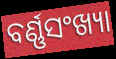
ବର୍ଣ୍ଣସଂଖ୍ୟା